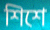
শিশে